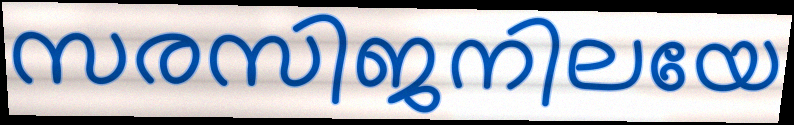
സരസിജനിലയേ